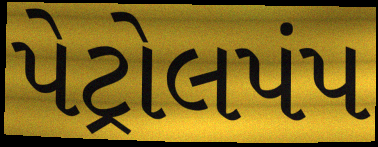
પેટ્રોલપંપ